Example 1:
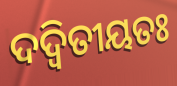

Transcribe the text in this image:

ଦଦ୍ୱିତୀୟତଃ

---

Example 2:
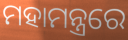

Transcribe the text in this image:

ମହାମନ୍ତ୍ରରେ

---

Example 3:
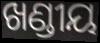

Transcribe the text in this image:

ଖଣ୍ଡୀୟ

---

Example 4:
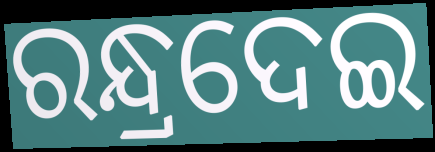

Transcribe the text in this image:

ରନ୍ଧ୍ରଦେଇ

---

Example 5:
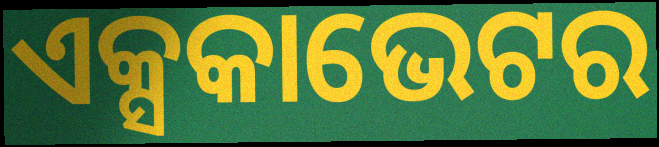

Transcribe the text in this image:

ଏକ୍ସକାଭେଟର